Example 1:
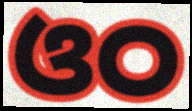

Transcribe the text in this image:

ଓଠ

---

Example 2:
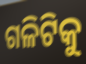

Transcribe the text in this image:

ଗଳିଟିକୁ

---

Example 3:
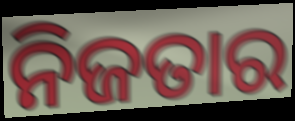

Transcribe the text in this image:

ନିଜତାର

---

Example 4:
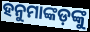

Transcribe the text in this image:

ହନୁମାଙ୍କଡ଼ଙ୍କୁ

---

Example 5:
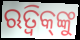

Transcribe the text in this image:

ଋତ୍ୱିକ୍‌ଙ୍କୁ